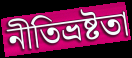
নীতিভ্রষ্টতা